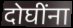
दोघींना